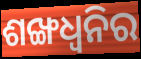
ଶଙ୍ଖଧ୍ବନିର